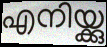
എനിയ്ക്കു